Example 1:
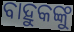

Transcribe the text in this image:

ବାହୁକଙ୍କୁ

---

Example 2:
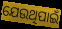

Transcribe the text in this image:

ଯେଉଥିପାଇଁ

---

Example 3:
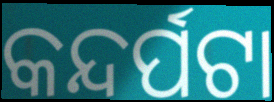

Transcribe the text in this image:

କନ୍ଦର୍ପଟା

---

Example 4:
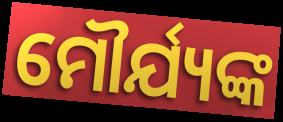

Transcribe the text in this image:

ମୌର୍ଯ୍ୟଙ୍କ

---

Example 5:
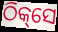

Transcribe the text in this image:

ଠିକ୍‌ସେ